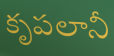
కృపలానీ